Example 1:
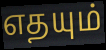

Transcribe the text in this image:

எதயும்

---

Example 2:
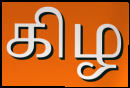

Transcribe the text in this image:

கிழ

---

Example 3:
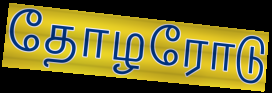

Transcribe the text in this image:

தோழரோடு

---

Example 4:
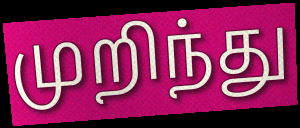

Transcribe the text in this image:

முறிந்து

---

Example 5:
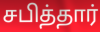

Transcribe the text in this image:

சபித்தார்